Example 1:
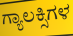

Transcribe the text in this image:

ಗ್ಯಾಲಕ್ಸಿಗಳ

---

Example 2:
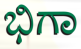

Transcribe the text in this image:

ಭಿಗಾ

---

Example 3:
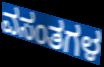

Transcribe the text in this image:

ವಸಂತಗಳ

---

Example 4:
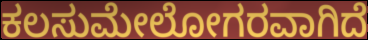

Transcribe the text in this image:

ಕಲಸುಮೇಲೋಗರವಾಗಿದೆ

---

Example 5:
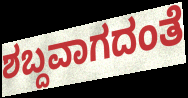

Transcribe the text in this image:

ಶಬ್ದವಾಗದಂತೆ